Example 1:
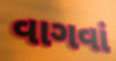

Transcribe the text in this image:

વાગવાં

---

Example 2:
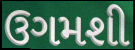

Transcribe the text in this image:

ઉગમશી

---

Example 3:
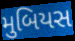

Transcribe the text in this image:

મુબિયસ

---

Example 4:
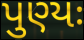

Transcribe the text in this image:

પુણ્યઃ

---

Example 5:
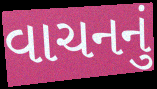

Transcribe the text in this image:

વાચનનું